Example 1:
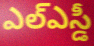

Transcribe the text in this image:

ఎల్ఎస్డీ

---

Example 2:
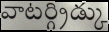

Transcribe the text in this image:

వాటర్గ్రిడ్కు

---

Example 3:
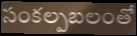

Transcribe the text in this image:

సంకల్పబలంతో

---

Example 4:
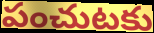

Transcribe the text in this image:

పంచుటకు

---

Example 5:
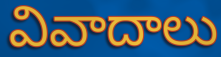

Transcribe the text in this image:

వివాదాలు